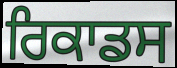
ਰਿਕਾਡਸ